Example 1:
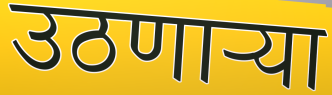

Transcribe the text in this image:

उठणाऱ्या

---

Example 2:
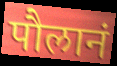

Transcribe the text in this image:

पौलानं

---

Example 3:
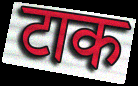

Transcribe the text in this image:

टाक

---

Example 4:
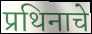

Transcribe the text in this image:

प्रथिनाचे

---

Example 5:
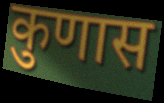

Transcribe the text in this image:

कुणास